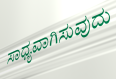
ಸಾಧ್ಯವಾಗಿಸುವುದು